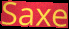
Saxe